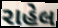
રાહેલ